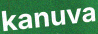
kanuva